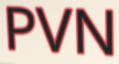
PVN